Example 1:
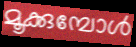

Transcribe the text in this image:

മൂക്കുമ്പോൾ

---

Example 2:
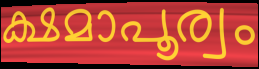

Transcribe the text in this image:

ക്ഷമാപൂര്വം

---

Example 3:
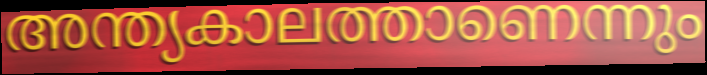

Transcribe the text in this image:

അന്ത്യകാലത്താണെന്നും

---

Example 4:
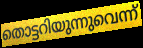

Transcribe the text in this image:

തൊട്ടറിയുന്നുവെന്ന്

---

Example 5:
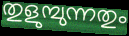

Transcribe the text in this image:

തുളുമ്പുന്നതും